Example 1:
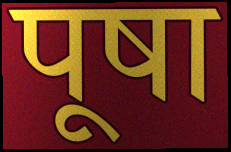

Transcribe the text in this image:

पूषा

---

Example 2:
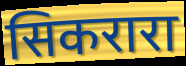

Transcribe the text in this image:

सिकरारा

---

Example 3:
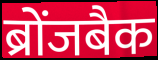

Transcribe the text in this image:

ब्रोंजबैक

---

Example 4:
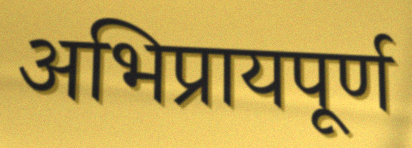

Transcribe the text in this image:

अभिप्रायपूर्ण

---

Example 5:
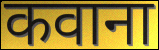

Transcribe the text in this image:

कवाना